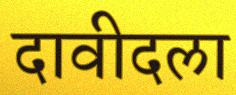
दावीदला